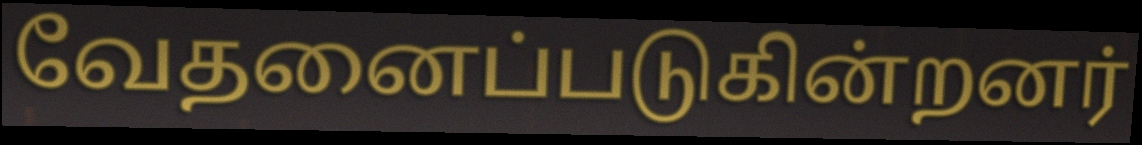
வேதனைப்படுகின்றனர்